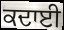
ਕਦਾਈ